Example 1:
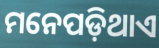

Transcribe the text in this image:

ମନେପଡ଼ିଥାଏ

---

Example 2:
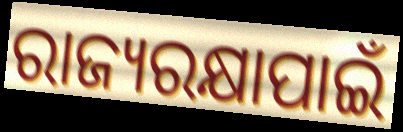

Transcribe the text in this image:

ରାଜ୍ୟରକ୍ଷାପାଇଁ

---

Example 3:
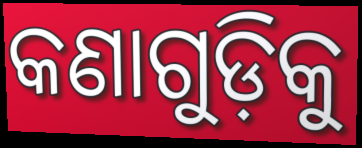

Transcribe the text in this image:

କଣାଗୁଡ଼ିକୁ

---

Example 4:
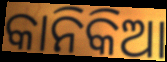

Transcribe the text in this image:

କାନିକିଆ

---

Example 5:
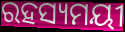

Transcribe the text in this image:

ରହସ୍ୟମୟୀ